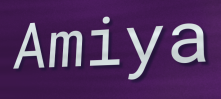
Amiya